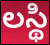
లస్థి